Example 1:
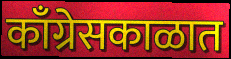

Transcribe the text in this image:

काँग्रेसकाळात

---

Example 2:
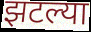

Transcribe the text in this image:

झटल्या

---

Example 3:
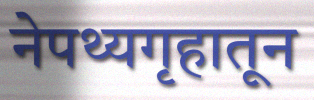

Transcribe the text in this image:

नेपथ्यगृहातून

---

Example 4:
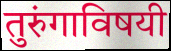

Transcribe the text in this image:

तुरुंगाविषयी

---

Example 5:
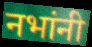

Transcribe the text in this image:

नभांनी